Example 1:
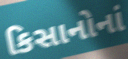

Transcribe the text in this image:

કિસાનોનાં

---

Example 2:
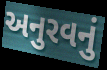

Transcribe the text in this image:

અનુરવનું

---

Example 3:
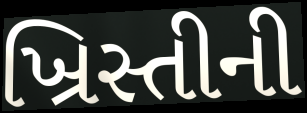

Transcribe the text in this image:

ખ્રિસ્તીની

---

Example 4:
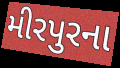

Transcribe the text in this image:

મીરપુરના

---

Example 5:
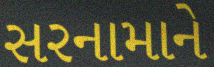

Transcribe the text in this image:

સરનામાને